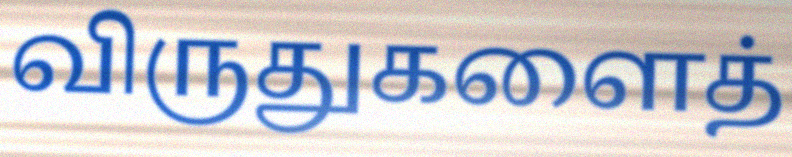
விருதுகளைத்